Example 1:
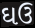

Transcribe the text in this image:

ઘઉ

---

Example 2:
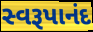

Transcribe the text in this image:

સ્વરૂપાનંદ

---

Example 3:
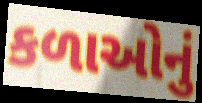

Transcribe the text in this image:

કળાઓનું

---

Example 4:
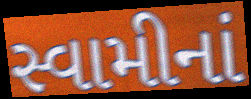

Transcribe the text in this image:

સ્વામીનાં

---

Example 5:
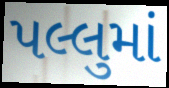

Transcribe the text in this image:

પલ્લુમાં